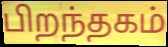
பிறந்தகம்